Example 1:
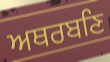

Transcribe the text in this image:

ਅਥਰਬਣਿ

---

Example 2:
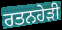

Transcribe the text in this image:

ਰਤਨਹੇੜੀ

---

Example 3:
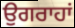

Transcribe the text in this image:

ਉਗਰਾਹਾਂ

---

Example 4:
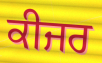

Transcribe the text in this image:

ਕੀਜਰ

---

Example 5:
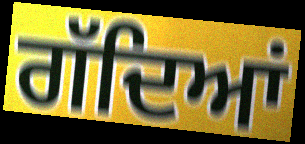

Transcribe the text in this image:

ਗੱਦਿਆਂ